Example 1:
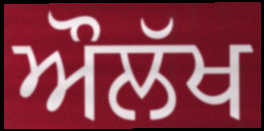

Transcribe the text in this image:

ਔਲੱਖ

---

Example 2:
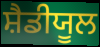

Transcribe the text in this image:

ਸ਼ੈਡੀਯੂਲ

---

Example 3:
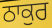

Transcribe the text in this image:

ਠਾਕੁਰ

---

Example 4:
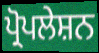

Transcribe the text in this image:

ਪ੍ਰੋਪਲੇਸ਼ਨ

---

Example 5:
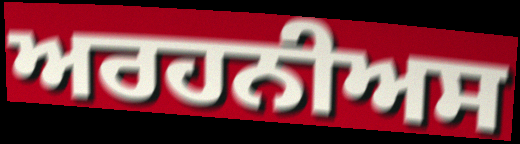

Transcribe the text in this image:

ਅਰਹਨੀਅਸ